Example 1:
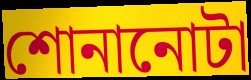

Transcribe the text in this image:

শোনানোটা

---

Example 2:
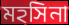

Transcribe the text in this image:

মহসিনা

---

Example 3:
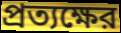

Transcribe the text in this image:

প্রত্যক্ষের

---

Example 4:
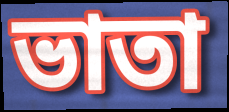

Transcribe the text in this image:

ভাতা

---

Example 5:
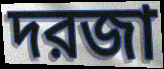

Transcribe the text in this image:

দরজা